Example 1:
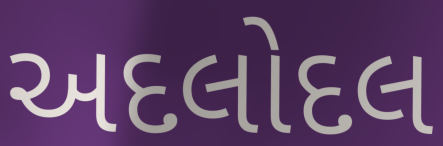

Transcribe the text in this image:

અદલોદલ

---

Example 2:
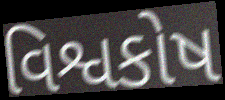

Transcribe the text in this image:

વિશ્વકોષ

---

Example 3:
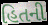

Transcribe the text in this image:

હિતની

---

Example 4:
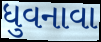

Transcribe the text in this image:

ધુવનાવા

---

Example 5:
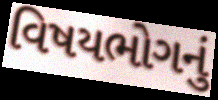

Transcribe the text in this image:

વિષયભોગનું